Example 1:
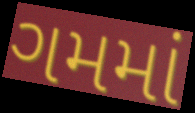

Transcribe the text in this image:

ગમમાં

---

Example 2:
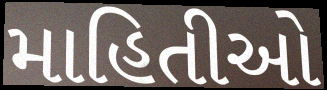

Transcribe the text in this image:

માહિતીઓ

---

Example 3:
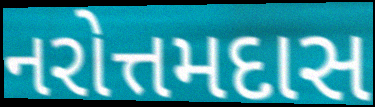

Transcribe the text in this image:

નરોત્તમદાસ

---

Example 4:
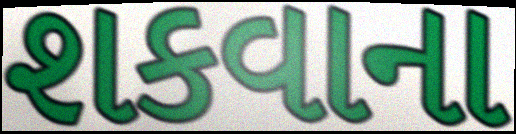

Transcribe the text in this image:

શકવાના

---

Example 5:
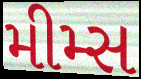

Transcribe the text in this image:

મીમ્સ